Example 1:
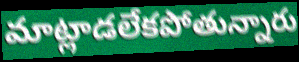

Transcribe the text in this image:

మాట్లాడలేకపోతున్నారు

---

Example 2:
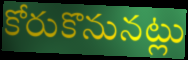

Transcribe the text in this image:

కోరుకొనునట్లు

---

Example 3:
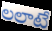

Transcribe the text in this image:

లలాటే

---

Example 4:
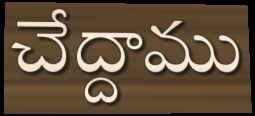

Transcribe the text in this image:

చేద్దాము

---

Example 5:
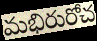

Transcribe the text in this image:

మభిరురోచ